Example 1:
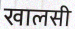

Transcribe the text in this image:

खालसी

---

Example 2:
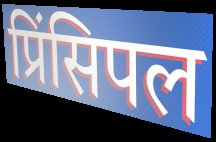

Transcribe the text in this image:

प्रिंसिपल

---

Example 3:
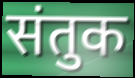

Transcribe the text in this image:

संतुक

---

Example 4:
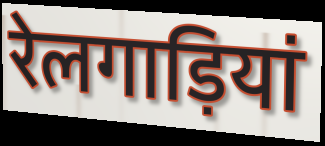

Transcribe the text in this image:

रेलगाड़ियां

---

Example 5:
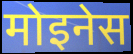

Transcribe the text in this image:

मोइनेस